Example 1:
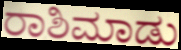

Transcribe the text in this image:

ರಾಶಿಮಾಡು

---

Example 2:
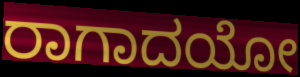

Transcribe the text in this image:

ರಾಗಾದಯೋ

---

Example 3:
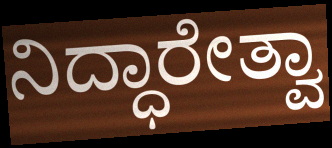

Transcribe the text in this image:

ನಿದ್ಧಾರೇತ್ವಾ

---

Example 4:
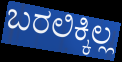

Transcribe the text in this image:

ಬರಲಿಕ್ಕಿಲ್ಲ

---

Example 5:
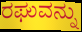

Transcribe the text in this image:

ರಘುವನ್ನು